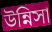
উন্নিসা